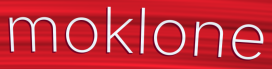
moklone